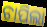
ଚାପିଲା